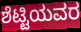
ಶೆಟ್ಟಿಯವರ